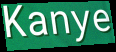
Kanye